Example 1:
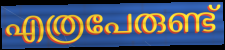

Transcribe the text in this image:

എത്രപേരുണ്ട്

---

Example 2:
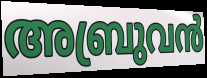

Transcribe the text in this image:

അബ്രുവൻ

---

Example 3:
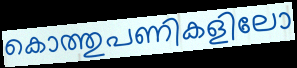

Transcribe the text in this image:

കൊത്തുപണികളിലോ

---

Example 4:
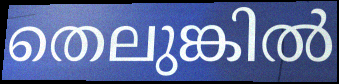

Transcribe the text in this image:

തെലുങ്കിൽ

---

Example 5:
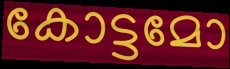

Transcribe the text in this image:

കോട്ടമോ